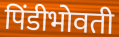
पिंडीभोवती